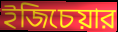
ইজিচেয়ার